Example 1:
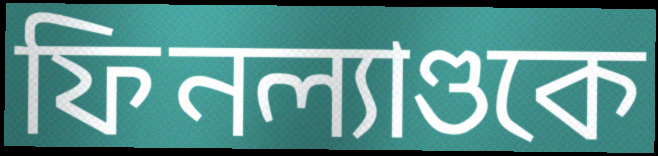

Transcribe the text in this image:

ফিনল্যাণ্ডকে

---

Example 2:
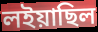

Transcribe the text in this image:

লইয়াছিল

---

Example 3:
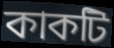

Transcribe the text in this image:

কাকটি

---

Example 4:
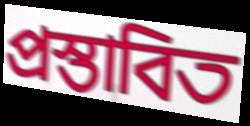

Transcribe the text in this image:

প্রস্তাবিত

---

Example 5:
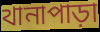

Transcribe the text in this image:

থানাপাড়া